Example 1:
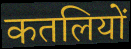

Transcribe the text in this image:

कतलियों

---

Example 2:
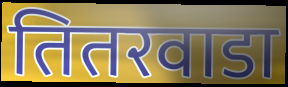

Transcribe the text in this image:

तितरवाडा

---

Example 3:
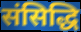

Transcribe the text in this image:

संसिद्धि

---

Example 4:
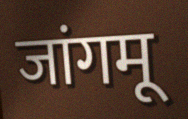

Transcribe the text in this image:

जांगमू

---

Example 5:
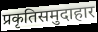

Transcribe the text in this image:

प्रकृतिसमुदाहार